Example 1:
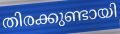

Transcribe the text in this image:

തിരക്കുണ്ടായി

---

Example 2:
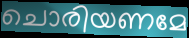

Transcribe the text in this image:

ചൊരിയണമേ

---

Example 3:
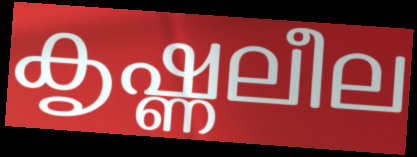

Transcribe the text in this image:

കൃഷ്ണലീല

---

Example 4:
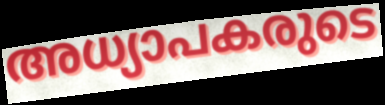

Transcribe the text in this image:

അധ്യാപകരുടെ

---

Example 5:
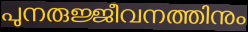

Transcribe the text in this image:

പുനരുജ്ജീവനത്തിനും